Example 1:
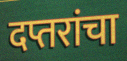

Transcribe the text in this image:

दप्तरांचा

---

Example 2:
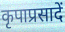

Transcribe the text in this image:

कृपाप्रसादें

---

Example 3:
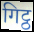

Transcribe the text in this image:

गिट्ठ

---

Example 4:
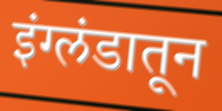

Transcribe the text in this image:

इंग्लंडातून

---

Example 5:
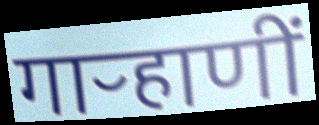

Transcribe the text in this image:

गाऱ्हाणीं